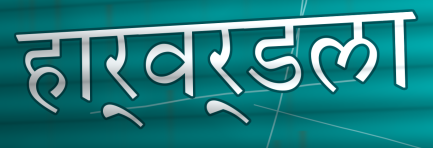
हार्वर्डला